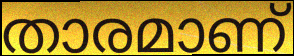
താരമാണ്